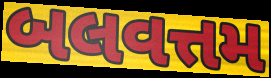
બલવત્તમ